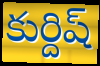
కుర్దిష్